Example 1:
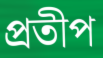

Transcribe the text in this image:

প্রতীপ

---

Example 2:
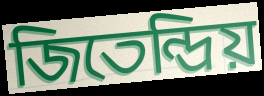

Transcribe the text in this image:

জিতেন্দ্রিয়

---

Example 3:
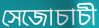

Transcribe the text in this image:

সেজোচাচী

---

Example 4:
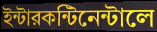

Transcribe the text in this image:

ইন্টারকন্টিনেন্টালে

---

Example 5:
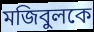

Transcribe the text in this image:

মজিবুলকে